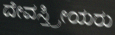
ದೇವಸ್ತ್ರೀಯರು